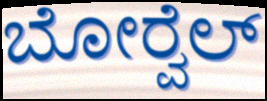
ಬೋರ್‍ವೆಲ್